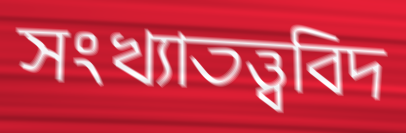
সংখ্যাতত্ত্ববিদ